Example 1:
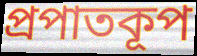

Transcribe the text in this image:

প্রপাতকূপ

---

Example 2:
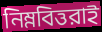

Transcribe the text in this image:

নিম্নবিত্তরাই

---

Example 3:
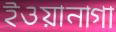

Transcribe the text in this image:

ইওয়ানাগা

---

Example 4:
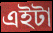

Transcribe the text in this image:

এইটা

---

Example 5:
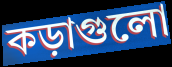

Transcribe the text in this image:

কড়াগুলো